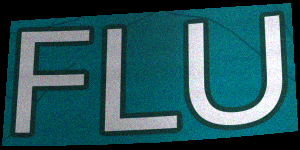
FLU